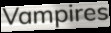
Vampires